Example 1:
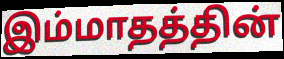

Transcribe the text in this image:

இம்மாதத்தின்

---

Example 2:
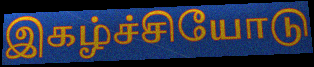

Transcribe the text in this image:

இகழ்ச்சியோடு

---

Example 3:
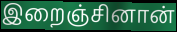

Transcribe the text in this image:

இறைஞ்சினான்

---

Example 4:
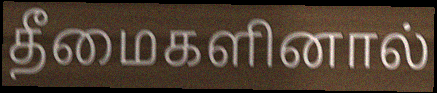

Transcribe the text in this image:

தீமைகளினால்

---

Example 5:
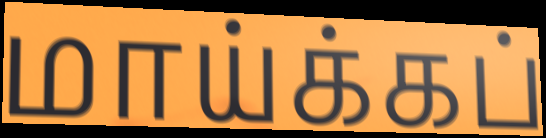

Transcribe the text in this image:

மாய்க்கப்